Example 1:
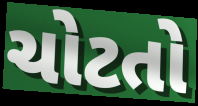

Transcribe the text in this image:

ચોટતો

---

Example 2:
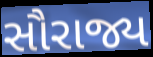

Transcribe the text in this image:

સૌરાજ્ય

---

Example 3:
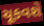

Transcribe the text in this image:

ચૂકવશે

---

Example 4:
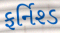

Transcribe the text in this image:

ફર્નિશ્ડ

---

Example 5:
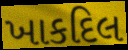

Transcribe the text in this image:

ખાકદિલ